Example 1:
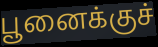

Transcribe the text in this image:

பூனைக்குச்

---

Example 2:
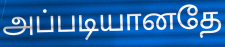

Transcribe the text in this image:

அப்படியானதே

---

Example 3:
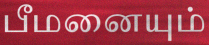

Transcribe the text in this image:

பீமனையும்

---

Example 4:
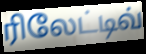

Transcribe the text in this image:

ரிலேட்டிவ்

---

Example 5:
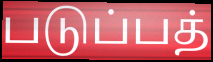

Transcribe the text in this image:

படுப்பத்